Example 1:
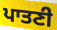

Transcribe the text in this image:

ਪਾਤਣੀ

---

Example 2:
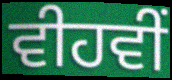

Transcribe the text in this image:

ਵੀਹਵੀਂ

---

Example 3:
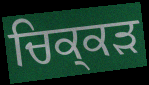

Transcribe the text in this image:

ਚਿਕ੍ਕੜ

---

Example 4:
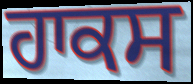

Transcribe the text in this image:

ਹਾਕਸ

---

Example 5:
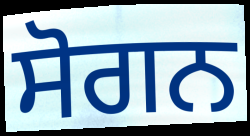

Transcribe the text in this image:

ਸੋਗਨ